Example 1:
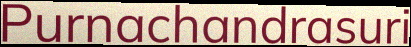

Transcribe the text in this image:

Purnachandrasuri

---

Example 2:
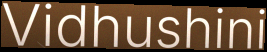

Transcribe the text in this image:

Vidhushini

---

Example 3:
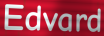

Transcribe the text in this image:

Edvard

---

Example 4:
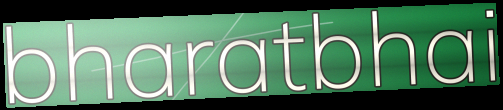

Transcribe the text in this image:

bharatbhai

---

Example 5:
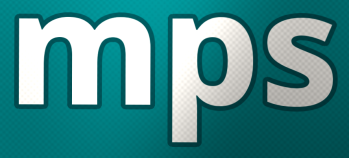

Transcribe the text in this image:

mps